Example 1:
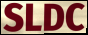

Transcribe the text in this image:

SLDC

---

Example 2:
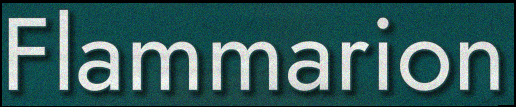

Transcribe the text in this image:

Flammarion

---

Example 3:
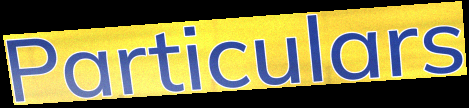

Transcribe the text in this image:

Particulars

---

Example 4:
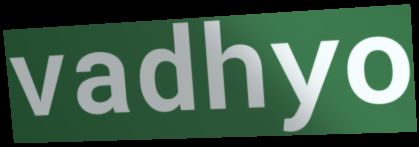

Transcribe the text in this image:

vadhyo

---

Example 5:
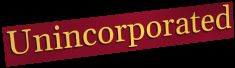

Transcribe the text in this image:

Unincorporated